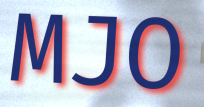
MJO